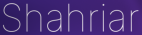
Shahriar